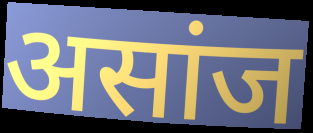
असांज